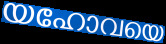
യഹോവയെ